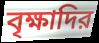
বৃক্ষাদির